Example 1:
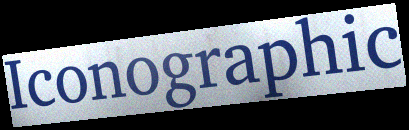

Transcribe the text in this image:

Iconographic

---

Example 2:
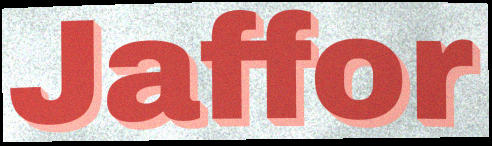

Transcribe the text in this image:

Jaffor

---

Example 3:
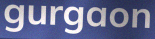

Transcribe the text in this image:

gurgaon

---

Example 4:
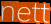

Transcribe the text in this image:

nett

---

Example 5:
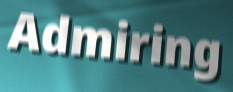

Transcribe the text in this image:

Admiring